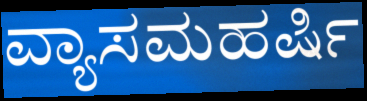
ವ್ಯಾಸಮಹರ್ಷಿ